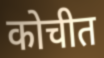
कोचीत